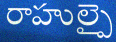
రాహుల్పై